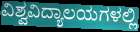
ವಿಶ್ವವಿದ್ಯಾಲಯಗಳಲ್ಲಿ